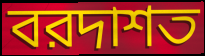
বরদাশত